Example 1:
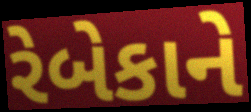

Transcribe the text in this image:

રેબેકાને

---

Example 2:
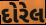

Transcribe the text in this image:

દોરેલ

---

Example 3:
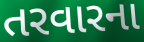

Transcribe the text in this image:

તરવારના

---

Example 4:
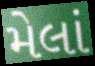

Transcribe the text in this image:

મેલાં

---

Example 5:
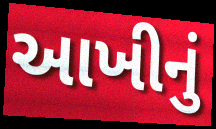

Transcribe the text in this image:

આખીનું